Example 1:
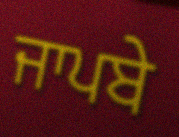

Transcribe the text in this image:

ਜਾਪਬੇ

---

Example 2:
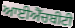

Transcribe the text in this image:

ਆਈਐੱਚਬੀਟੀ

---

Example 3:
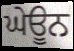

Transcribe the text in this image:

ਘੇਊਨ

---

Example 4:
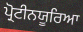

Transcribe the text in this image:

ਪ੍ਰੋਟੀਨਯੂਰਿਆ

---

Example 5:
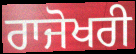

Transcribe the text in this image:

ਰਾਜੋਖਰੀ